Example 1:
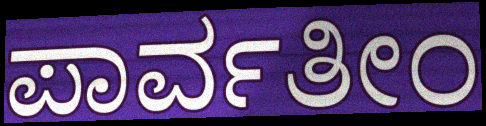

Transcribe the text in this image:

ಪಾರ್ವತೀಂ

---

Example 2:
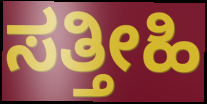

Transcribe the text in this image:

ಸತ್ತೀಹಿ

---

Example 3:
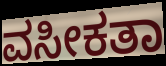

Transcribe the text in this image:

ವಸೀಕತಾ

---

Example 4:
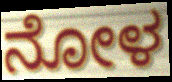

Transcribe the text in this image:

ನೋಳ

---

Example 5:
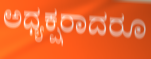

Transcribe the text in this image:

ಅಧ್ಯಕ್ಷರಾದರೂ